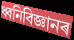
ধ্বনিবিজ্ঞানৰ